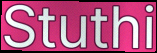
Stuthi